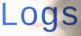
Logs